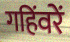
गहिंवरें